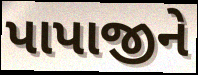
પાપાજીને